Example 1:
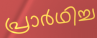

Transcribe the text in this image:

പ്രാർഥിച്ച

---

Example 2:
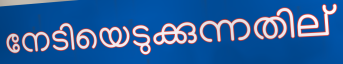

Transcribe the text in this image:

നേടിയെടുക്കുന്നതില്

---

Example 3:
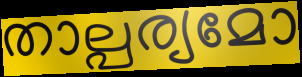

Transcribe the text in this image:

താല്പര്യമോ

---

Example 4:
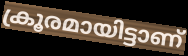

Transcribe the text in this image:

ക്രൂരമായിട്ടാണ്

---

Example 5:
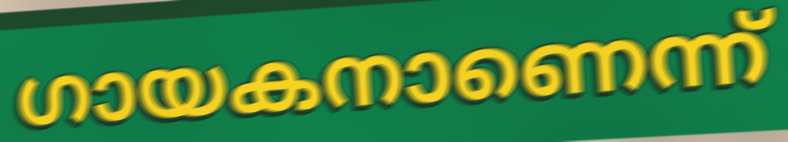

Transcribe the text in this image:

ഗായകനാണെന്ന്